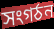
সংগঠন